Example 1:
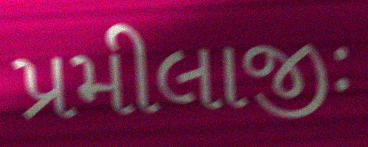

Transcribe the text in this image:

પ્રમીલાજીઃ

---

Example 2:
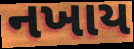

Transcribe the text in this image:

નખાય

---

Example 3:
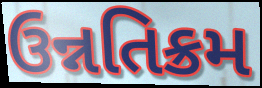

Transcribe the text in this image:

ઉન્નતિક્રમ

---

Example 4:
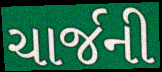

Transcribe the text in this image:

ચાર્જની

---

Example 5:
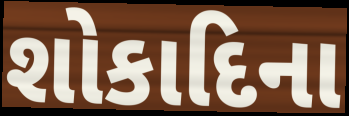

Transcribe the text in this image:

શોકાદિના